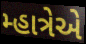
મ્હાત્રેએ